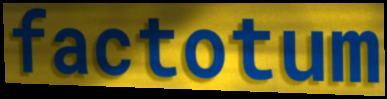
factotum